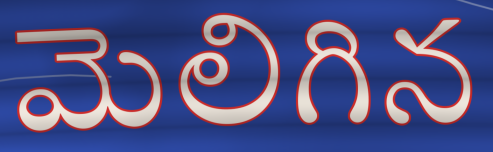
మెలిగిన